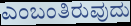
ಎಂಬಂತಿರುವುದು